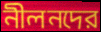
নীলনদের